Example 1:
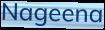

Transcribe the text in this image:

Nageena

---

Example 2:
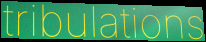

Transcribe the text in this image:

tribulations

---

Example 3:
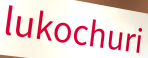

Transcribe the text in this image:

lukochuri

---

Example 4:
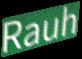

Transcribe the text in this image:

Rauh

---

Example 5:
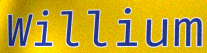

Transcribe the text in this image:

Willium